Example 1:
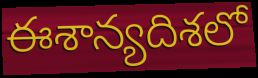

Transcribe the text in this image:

ఈశాన్యదిశలో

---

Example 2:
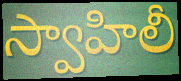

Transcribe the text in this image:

స్వాహిలీ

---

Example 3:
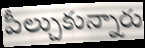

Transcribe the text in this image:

పీల్చుకున్నారు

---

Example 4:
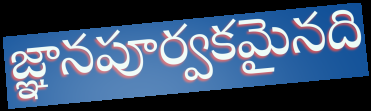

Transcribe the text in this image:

జ్ఞానపూర్వకమైనది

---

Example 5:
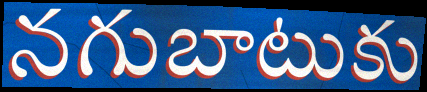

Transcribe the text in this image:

నగుబాటుకు